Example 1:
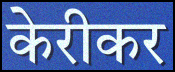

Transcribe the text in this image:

केरीकर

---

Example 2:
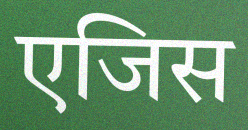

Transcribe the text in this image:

एजिस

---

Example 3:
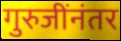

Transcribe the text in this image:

गुरुजींनंतर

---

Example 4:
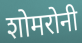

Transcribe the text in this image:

शोमरोनी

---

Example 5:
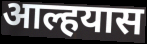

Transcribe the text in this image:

आल्हयास